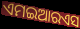
ଏମଇଆରଏସ